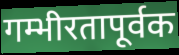
गम्भीरतापूर्वक